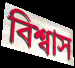
বিশ্বাস